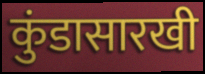
कुंडासारखी